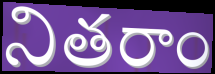
నితరాం